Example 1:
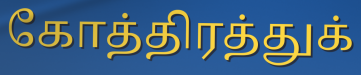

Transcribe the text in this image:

கோத்திரத்துக்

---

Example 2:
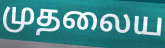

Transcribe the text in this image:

முதலைய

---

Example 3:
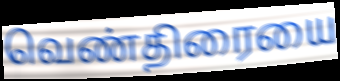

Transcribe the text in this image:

வெண்திரையை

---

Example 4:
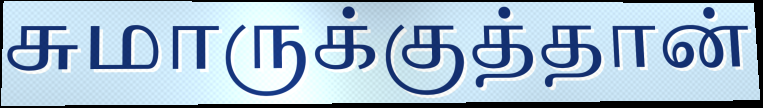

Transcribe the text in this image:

சுமாருக்குத்தான்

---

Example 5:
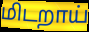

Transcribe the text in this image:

மிடறாய்